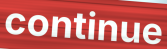
continue